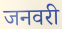
जनवरी